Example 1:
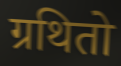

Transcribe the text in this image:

ग्रथितो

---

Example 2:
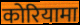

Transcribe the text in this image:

कोरियामा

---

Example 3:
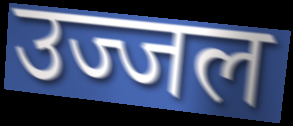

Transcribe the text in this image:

उज्जल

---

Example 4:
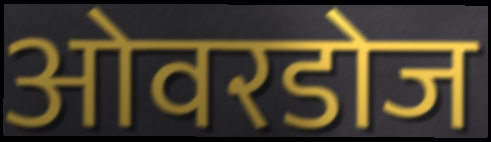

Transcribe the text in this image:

ओवरडोज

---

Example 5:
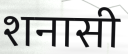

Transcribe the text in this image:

शनासी